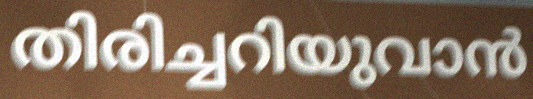
തിരിച്ചറിയുവാൻ